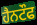
ਹੈਨਟੌਫ